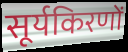
सूर्यकिरणों